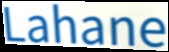
Lahane